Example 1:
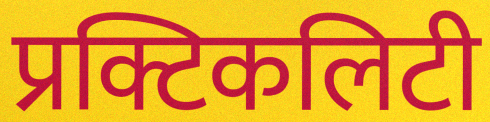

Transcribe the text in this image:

प्रक्टिकलिटी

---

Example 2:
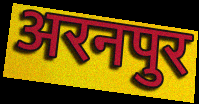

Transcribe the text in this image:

अरनपुर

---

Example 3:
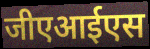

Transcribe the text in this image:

जीएआईएस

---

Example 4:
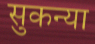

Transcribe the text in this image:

सुकन्या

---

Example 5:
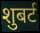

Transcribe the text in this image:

शुबर्ट